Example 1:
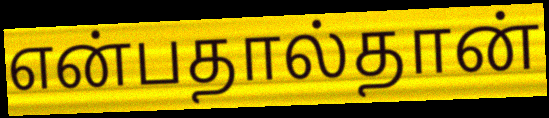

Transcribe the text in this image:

என்பதால்தான்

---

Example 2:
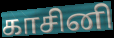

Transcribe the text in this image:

காசினி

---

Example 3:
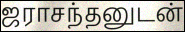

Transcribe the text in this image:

ஜராசந்தனுடன்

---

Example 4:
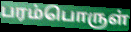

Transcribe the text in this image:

பரம்பொருள்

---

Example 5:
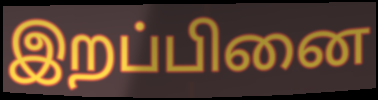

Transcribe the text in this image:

இறப்பினை